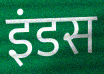
इंडस